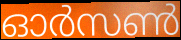
ഓർസൺ